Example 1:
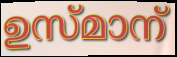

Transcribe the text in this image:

ഉസ്മാന്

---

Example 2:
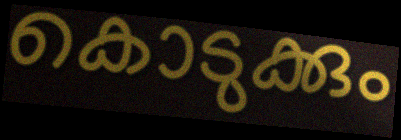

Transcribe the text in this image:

കൊടുക്കും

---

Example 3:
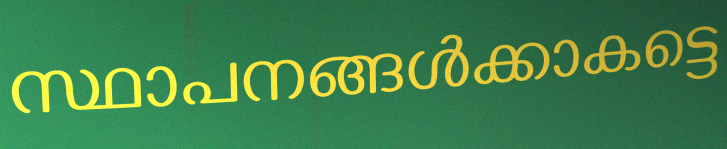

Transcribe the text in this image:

സ്ഥാപനങ്ങൾക്കാകട്ടെ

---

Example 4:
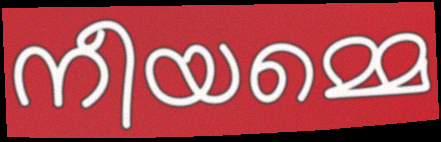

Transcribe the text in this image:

നീയമ്മെ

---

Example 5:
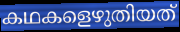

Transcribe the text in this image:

കഥകളെഴുതിയത്